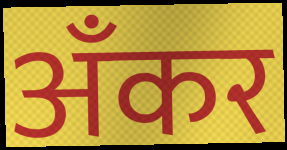
अँकर